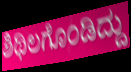
ಶಿಥಿಲಗೊಂಡಿದ್ದು